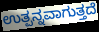
ಉತ್ಪನ್ನವಾಗುತ್ತದೆ